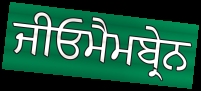
ਜੀਓਮੈਮਬ੍ਰੇਨ